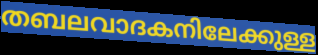
തബലവാദകനിലേക്കുള്ള